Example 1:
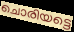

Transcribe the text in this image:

ചൊരിയട്ടെ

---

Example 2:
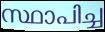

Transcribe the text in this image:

സ്ഥാപിച്ച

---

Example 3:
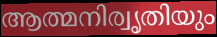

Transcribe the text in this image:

ആത്മനിര്വൃതിയും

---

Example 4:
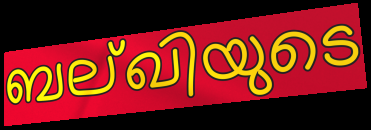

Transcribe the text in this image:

ബല്ഖിയുടെ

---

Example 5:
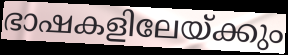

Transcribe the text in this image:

ഭാഷകളിലേയ്ക്കും